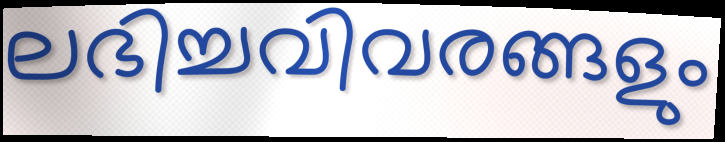
ലഭിച്ചവിവരങ്ങളും